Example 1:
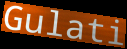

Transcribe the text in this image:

Gulati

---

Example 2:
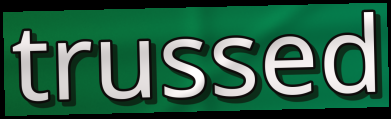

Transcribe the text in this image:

trussed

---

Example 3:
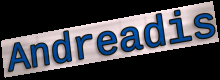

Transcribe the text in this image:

Andreadis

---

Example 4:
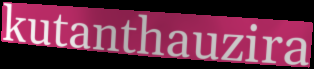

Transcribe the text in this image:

kutanthauzira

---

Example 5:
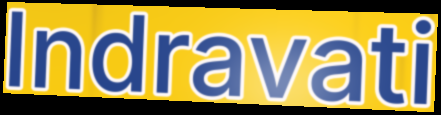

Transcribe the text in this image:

Indravati